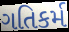
ગતિકર્મ